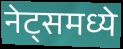
नेट्समध्ये